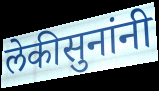
लेकीसुनांनी